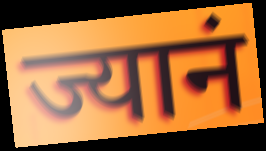
ज्यानं